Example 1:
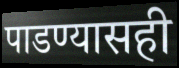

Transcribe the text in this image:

पाडण्यासही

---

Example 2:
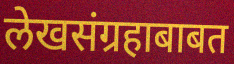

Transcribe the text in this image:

लेखसंग्रहाबाबत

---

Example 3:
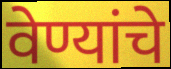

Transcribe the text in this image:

वेण्यांचे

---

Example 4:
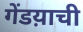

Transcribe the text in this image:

गेंडय़ाची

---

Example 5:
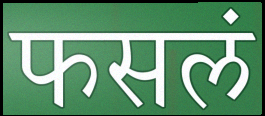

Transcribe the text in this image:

फसलं